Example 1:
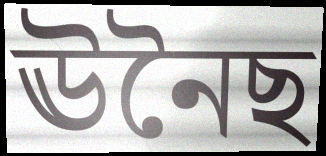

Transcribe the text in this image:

ঊনৈছ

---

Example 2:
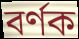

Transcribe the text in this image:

বৰ্ণক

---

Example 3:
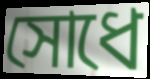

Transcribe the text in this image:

সোধে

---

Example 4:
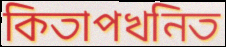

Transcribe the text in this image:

কিতাপখনিত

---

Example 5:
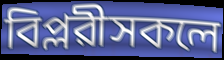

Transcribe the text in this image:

বিপ্লৱীসকলে